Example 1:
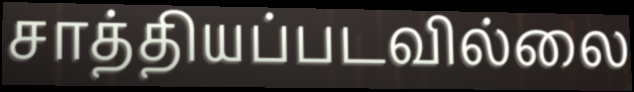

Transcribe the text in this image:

சாத்தியப்படவில்லை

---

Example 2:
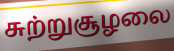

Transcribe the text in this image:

சுற்றுசூழலை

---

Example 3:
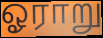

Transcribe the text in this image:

ஓராறு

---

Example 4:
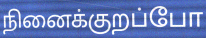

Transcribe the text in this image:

நினைக்குறப்போ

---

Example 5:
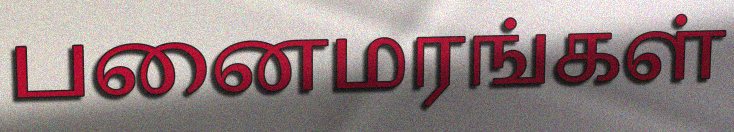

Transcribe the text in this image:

பனைமரங்கள்